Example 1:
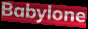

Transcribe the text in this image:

Babylone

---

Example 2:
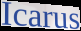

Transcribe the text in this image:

Icarus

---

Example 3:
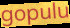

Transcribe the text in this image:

gopulu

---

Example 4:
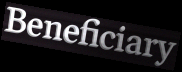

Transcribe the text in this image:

Beneficiary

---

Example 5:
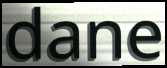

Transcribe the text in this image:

dane